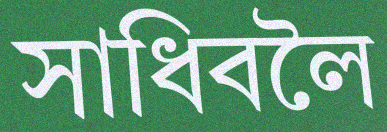
সাধিবলৈ